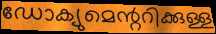
ഡോക്യുമെന്ററിക്കുള്ള